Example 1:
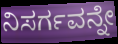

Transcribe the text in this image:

ನಿಸರ್ಗವನ್ನೇ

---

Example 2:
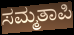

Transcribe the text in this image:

ಸಮ್ಮತಾಪಿ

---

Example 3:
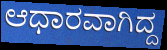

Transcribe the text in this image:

ಆಧಾರವಾಗಿದ್ದ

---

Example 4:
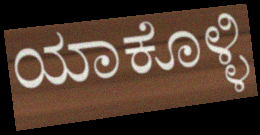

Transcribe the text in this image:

ಯಾಕೊಳ್ಳಿ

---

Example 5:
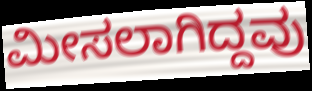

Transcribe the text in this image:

ಮೀಸಲಾಗಿದ್ದವು